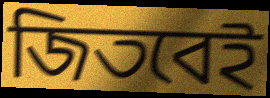
জিতবেই